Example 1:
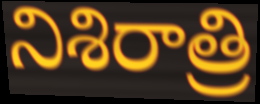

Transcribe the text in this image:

నిశిరాత్రి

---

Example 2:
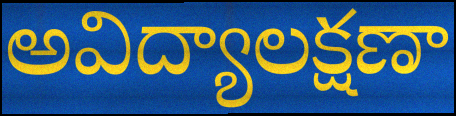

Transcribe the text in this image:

అవిద్యాలక్షణా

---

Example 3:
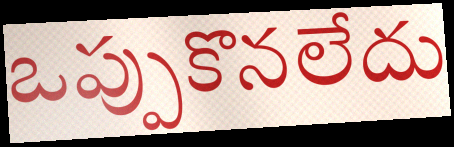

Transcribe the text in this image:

ఒప్పుకొనలేదు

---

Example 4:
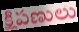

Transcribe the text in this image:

క్షిపణులు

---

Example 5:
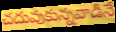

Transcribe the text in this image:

చదువుకున్నవాడినే